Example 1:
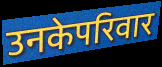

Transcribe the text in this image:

उनकेपरिवार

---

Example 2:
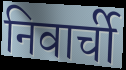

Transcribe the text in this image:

निवार्ची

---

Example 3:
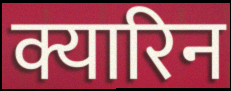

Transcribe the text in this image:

क्यारिन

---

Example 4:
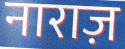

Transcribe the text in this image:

नाराज़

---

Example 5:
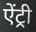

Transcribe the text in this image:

ऐंट्री